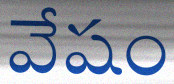
వేషం